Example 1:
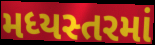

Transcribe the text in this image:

મધ્યસ્તરમાં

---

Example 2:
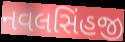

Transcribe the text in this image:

નવલસિંહજી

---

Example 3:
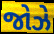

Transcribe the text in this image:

જોઝે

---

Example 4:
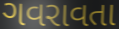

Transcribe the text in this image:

ગવરાવતા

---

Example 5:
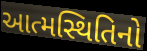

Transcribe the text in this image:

આત્મસ્થિતિનો